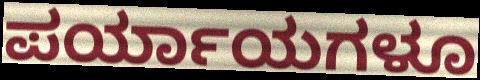
ಪರ್ಯಾಯಗಳೂ